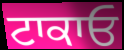
ਟਾਕਾਓ